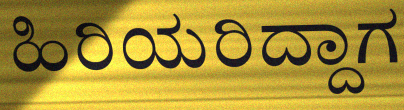
ಹಿರಿಯರಿದ್ದಾಗ